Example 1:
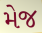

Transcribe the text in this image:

મેજ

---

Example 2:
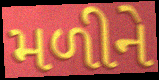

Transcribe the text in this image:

મળીને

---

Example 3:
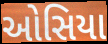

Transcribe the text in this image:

ઓસિયા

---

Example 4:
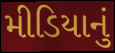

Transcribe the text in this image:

મીડિયાનું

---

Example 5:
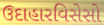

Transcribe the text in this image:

ઉદાહારવિસેસો